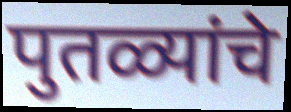
पुतळ्यांचे